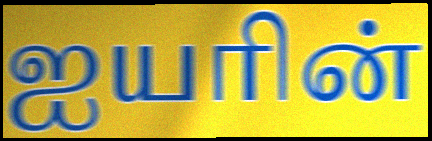
ஐயரின்